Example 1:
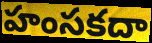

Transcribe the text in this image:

హంసకదా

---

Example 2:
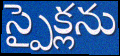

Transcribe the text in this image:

స్పైక్లను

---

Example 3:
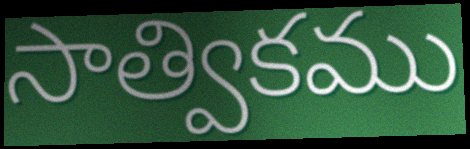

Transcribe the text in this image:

సాత్వికము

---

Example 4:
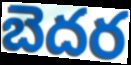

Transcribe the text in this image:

బెదర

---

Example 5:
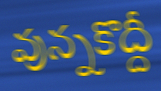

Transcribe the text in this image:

వున్నకొద్దీ